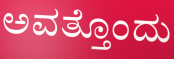
ಅವತ್ತೊಂದು